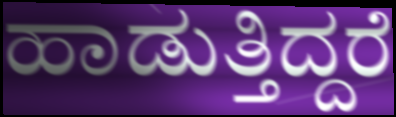
ಹಾಡುತ್ತಿದ್ದರೆ